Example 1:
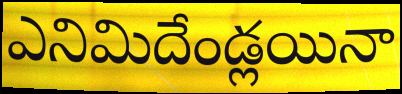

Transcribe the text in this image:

ఎనిమిదేండ్లయినా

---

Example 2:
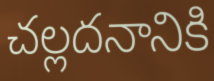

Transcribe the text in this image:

చల్లదనానికి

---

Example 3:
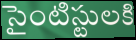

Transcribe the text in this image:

సైంటిస్టులకి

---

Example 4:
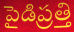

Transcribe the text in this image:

పైడిప్రత్తి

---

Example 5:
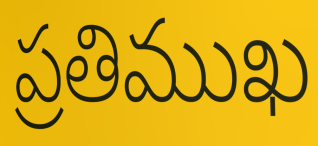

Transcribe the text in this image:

ప్రతిముఖ